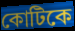
কোটিকে